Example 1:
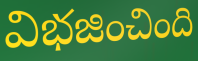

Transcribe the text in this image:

విభజించింది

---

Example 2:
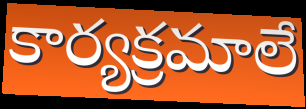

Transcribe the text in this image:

కార్యక్రమాలే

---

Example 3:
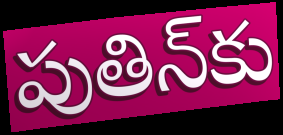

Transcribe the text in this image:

పుతిన్‌కు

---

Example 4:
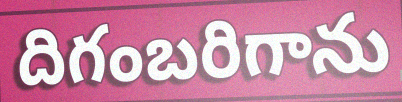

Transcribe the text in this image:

దిగంబరిగాను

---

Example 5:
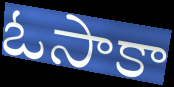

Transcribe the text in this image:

ఓసాకా